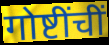
गोष्टींचीं